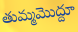
తుమ్మమొద్దూ